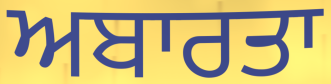
ਅਬਾਰਤਾ